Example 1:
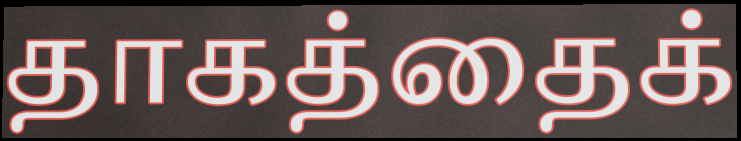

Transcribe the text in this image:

தாகத்தைக்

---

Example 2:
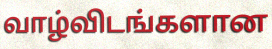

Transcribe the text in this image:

வாழ்விடங்களான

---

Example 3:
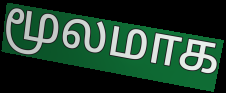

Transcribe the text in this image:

மூலமாக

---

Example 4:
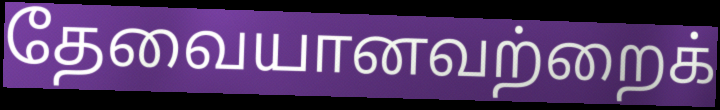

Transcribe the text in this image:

தேவையானவற்றைக்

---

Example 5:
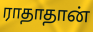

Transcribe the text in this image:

ராதாதான்